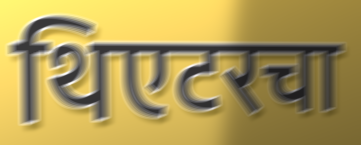
थिएटरचा